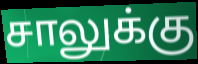
சாலுக்கு